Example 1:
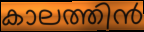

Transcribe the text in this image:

കാലത്തിൻ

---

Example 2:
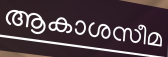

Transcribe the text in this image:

ആകാശസീമ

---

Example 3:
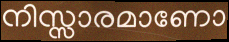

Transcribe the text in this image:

നിസ്സാരമാണോ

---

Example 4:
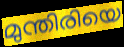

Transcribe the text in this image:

മുന്തിരിയെ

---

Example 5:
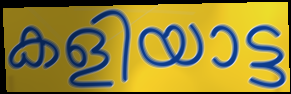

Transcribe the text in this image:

കളിയാട്ട